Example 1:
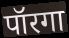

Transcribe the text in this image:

पॉरगा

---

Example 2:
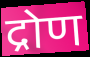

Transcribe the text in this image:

द्रोण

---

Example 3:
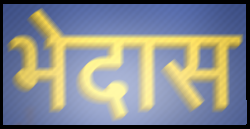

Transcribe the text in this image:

भेदास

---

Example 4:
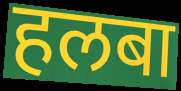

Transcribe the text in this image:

हलबा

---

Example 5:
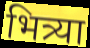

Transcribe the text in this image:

भित्र्या